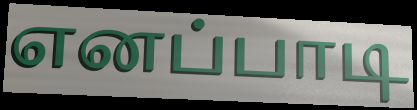
எனப்பாடி